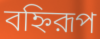
বহ্নিরূপ